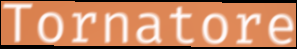
Tornatore